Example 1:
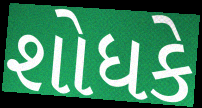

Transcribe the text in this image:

શોધકે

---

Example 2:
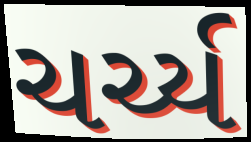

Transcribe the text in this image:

ચર્ચ્ય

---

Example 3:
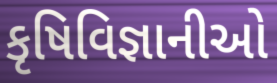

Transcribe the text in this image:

કૃષિવિજ્ઞાનીઓ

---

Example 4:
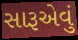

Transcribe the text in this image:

સારૂએવું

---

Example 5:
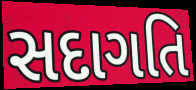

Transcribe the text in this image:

સદાગતિ